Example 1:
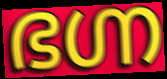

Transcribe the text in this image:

ഭഗ്ന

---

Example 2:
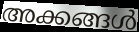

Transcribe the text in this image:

അക്കങ്ങൾ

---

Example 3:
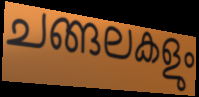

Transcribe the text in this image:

ചങ്ങലകളും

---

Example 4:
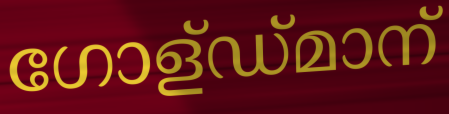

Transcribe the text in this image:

ഗോള്ഡ്മാന്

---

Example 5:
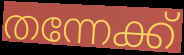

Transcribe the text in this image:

തന്നേക്ക്